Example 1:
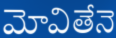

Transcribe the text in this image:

మోవితేనె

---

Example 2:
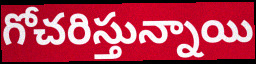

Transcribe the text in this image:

గోచరిస్తున్నాయి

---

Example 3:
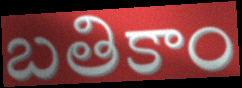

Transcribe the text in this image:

బతికాం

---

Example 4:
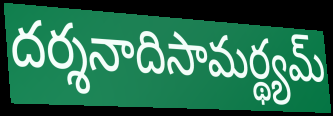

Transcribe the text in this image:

దర్శనాదిసామర్థ్యమ్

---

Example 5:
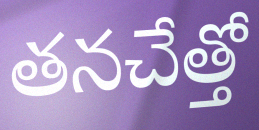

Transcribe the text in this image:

తనచేత్తో